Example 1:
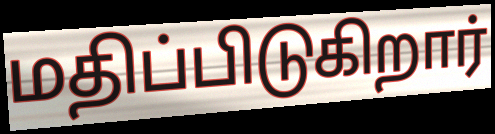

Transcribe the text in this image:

மதிப்பிடுகிறார்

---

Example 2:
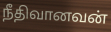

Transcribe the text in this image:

நீதிவானவன்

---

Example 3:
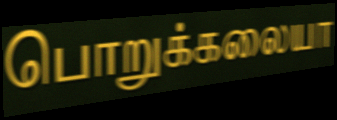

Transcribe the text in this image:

பொறுக்கலையா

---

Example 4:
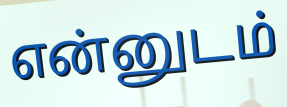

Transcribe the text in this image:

என்னுடம்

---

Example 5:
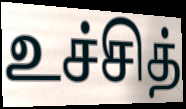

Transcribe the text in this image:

உச்சித்